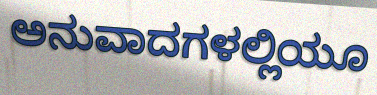
ಅನುವಾದಗಳಲ್ಲಿಯೂ